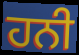
ਹਨੀ